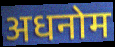
अधनोम